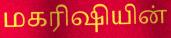
மகரிஷியின்